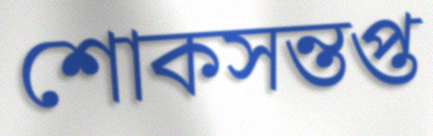
শোকসন্তপ্ত